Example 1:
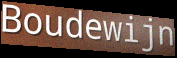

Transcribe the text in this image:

Boudewijn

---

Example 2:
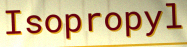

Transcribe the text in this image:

Isopropyl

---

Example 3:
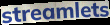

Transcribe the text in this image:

streamlets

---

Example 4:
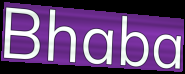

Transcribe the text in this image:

Bhaba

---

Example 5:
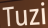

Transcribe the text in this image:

Tuzi